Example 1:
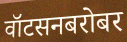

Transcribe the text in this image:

वॉटसनबरोबर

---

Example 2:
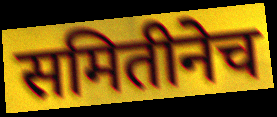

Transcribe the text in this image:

समितीनेच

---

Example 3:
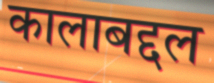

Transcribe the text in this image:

कालाबद्दल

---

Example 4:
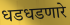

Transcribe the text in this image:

धडधडणारे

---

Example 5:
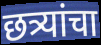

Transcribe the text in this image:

छत्र्यांचा